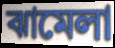
ঝামেলা